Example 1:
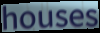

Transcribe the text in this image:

houses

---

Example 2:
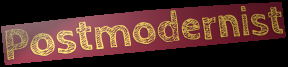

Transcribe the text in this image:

Postmodernist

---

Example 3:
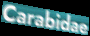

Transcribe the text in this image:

Carabidae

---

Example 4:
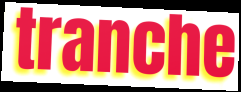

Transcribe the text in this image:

tranche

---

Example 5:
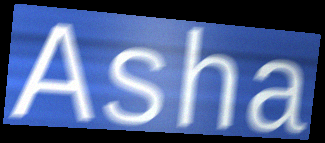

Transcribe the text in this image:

Asha